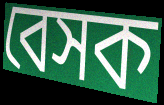
বেসক